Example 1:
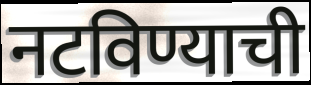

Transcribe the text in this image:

नटविण्याची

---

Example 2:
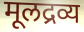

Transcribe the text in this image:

मूलद्रव्य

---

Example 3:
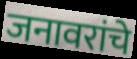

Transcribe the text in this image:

जनावरांचे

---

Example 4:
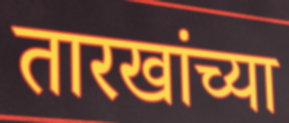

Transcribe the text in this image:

तारखांच्या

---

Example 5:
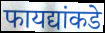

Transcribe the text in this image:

फायद्यांकडे